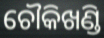
ଚୌକିଖଣ୍ଡି